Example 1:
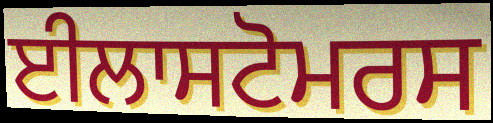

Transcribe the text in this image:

ਈਲਾਸਟੋਮਰਸ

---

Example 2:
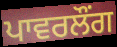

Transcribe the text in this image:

ਪਾਵਰਲੌਂਗ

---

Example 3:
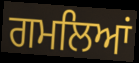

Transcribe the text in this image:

ਗਮਲਿਆਂ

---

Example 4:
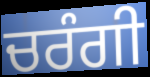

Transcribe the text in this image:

ਚਰੰਗੀ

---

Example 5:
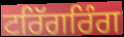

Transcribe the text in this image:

ਟਰਿੱਗਰਿੰਗ